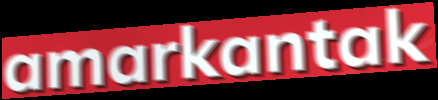
amarkantak